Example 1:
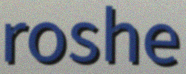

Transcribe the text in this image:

roshe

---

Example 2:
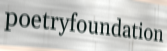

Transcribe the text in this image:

poetryfoundation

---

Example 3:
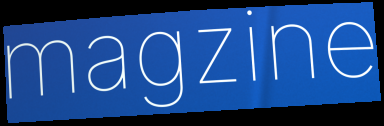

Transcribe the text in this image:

magzine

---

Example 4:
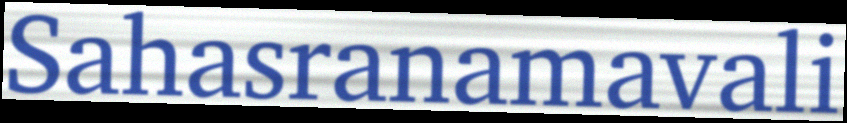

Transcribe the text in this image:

Sahasranamavali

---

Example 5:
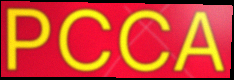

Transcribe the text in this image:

PCCA